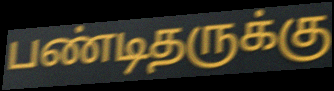
பண்டிதருக்கு